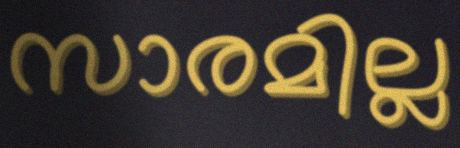
സാരമില്ല